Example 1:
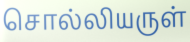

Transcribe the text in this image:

சொல்லியருள்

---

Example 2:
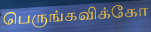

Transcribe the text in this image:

பெருங்கவிக்கோ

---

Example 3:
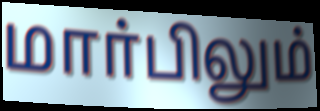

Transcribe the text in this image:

மார்பிலும்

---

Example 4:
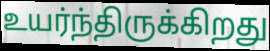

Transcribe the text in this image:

உயர்ந்திருக்கிறது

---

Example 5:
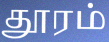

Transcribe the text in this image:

தூரம்